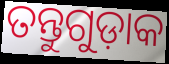
ତନ୍ତୁଗୁଡ଼ାକ